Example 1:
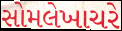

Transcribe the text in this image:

સોમલેખાચરે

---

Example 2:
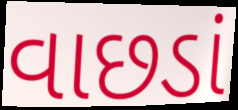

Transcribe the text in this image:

વાછડાં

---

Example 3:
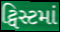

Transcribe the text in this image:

ટ્વિસ્ટમાં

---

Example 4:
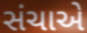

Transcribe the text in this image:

સંચાએ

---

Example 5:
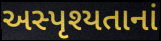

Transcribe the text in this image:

અસ્પૃશ્યતાનાં